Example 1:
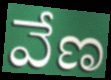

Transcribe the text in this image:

వేణ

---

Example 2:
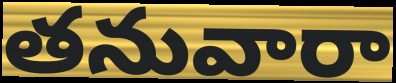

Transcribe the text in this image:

తనువారా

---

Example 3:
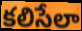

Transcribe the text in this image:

కలిసేలా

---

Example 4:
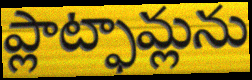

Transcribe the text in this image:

ప్లాట్ఫామ్లను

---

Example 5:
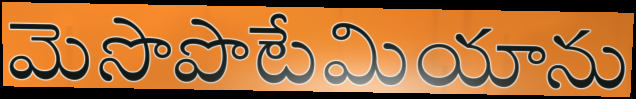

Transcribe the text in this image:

మెసొపొటేమియాను